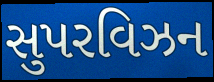
સુપરવિઝન